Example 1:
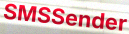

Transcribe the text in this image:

SMSSender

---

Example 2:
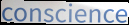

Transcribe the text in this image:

conscience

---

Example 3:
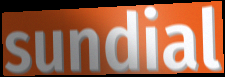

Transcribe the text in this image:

sundial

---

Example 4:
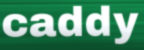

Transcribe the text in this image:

caddy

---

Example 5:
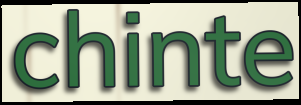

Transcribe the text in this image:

chinte